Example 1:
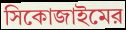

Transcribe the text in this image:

সিকোজাইমের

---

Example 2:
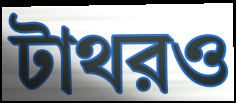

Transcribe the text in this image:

টাথরও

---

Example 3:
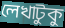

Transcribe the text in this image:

লেখাটুকু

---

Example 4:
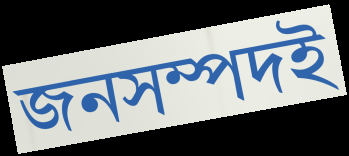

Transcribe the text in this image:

জনসম্পদই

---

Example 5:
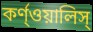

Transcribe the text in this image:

কর্ণ্ওয়ালিস্